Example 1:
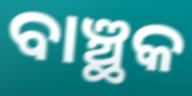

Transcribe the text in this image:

ବାଞ୍ଛକ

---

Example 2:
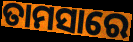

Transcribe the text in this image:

ତାମସାରେ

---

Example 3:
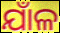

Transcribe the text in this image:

ଯାଁଳ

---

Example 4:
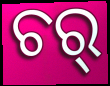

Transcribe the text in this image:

ଚର୍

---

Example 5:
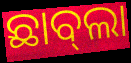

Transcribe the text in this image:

ଛାବ୍‍ଲା